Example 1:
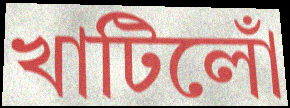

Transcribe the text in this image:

খাটিলোঁ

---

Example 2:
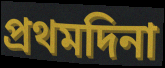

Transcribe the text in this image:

প্ৰথমদিনা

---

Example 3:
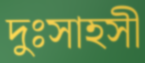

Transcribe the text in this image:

দুঃসাহসী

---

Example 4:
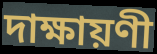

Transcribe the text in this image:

দাক্ষায়ণী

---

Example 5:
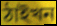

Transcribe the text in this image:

ঠাইখন